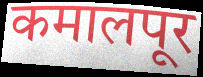
कमालपूर